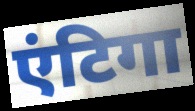
एंटिगा